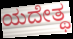
ಯದೇತ್ಥ